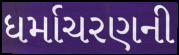
ધર્માચરણની